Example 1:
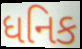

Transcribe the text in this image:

ધનિક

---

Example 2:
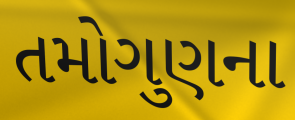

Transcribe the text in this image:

તમોગુણના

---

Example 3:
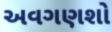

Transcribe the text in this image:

અવગણશો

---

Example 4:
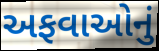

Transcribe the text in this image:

અફવાઓનું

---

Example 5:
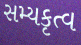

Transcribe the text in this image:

સમ્યકૃત્વ